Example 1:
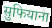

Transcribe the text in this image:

सुफियाना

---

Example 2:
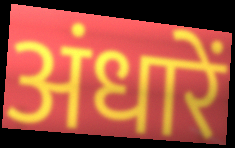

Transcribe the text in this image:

अंधारें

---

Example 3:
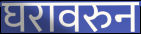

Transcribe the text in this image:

घरावरुन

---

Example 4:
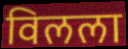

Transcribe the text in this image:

विलला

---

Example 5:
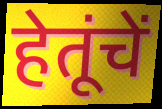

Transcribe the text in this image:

हेतूंचें